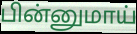
பின்னுமாய்